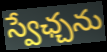
స్వేఛ్చను